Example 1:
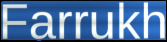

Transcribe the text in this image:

Farrukh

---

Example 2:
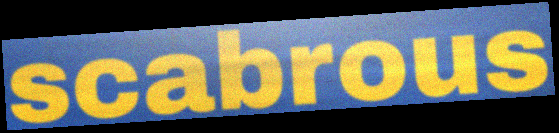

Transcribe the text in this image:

scabrous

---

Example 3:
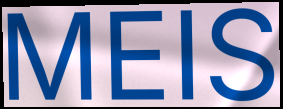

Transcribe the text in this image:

MEIS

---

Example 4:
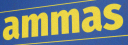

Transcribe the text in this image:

ammas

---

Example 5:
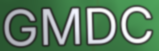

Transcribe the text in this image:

GMDC